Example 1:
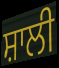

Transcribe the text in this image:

ਸ਼ਾਲੀ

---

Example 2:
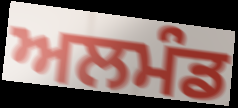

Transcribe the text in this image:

ਅਲਮੰਡ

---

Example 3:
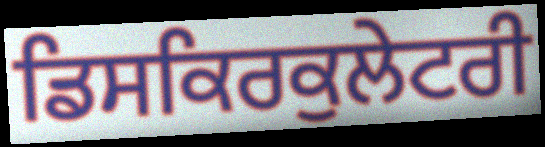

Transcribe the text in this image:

ਡਿਸਕਿਰਕੁਲੇਟਰੀ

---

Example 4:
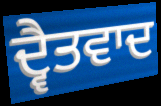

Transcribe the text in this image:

ਦ੍ਵੈਤਵਾਦ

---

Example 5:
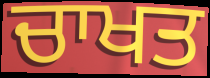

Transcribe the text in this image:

ਚਾਖਤ